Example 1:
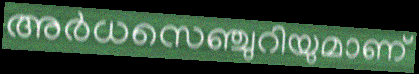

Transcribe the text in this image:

അർധസെഞ്ചുറിയുമാണ്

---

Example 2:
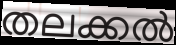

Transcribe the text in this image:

തലക്കൽ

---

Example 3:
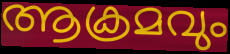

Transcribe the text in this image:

ആക്രമവും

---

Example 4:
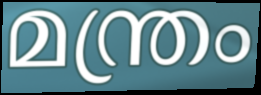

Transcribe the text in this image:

മന്ത്രം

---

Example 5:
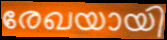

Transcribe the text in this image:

രേഖയായി